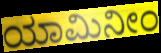
ಯಾಮಿನೀಂ